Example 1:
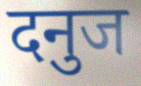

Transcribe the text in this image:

दनुज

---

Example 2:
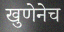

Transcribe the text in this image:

खुणेनेच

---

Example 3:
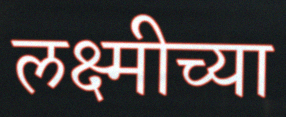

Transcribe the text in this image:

लक्ष्मीच्या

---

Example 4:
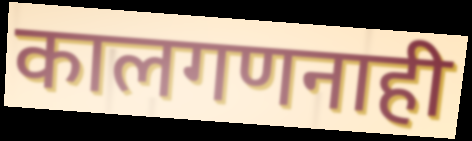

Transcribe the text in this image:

कालगणनाही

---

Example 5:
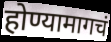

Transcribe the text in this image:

होण्यामागचं